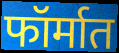
फॉर्मात